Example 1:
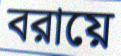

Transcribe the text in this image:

বরায়ে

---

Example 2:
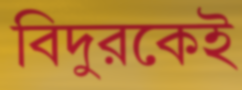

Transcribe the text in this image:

বিদুরকেই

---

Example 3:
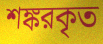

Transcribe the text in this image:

শঙ্করকৃত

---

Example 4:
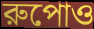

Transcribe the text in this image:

রুপোও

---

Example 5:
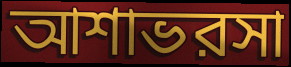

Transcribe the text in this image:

আশাভরসা